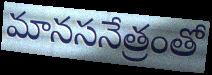
మానసనేత్రంతో